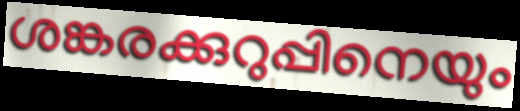
ശങ്കരക്കുറുപ്പിനെയും